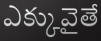
ఎక్కువైతే